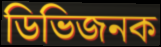
ডিভিজনক